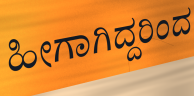
ಹೀಗಾಗಿದ್ದರಿಂದ